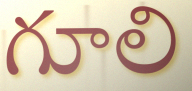
గూలి